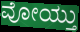
ವೋಯ್ತು